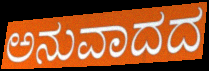
ಅನುವಾದದ